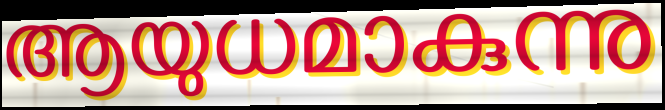
ആയുധമാകുന്നു